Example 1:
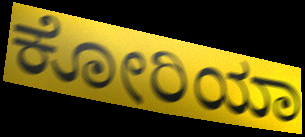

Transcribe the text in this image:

ಕೋರಿಯಾ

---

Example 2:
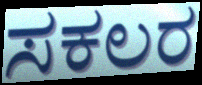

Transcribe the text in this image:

ಸಕಲರ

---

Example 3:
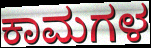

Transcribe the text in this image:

ಕಾಮಗಳ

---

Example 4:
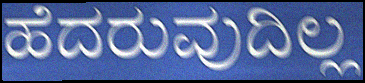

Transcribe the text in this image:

ಹೆದರುವುದಿಲ್ಲ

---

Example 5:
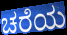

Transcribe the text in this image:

ಚರೆಯ